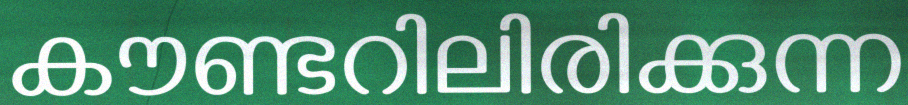
കൗണ്ടറിലിരിക്കുന്ന